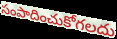
సంపాదించుకోగలదు